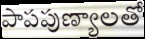
పాపపుణ్యాలతో